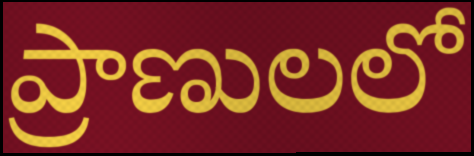
ప్రాణులలో